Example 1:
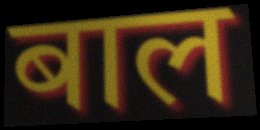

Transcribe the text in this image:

बाल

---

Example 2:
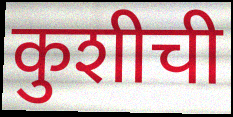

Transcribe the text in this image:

कुशीची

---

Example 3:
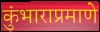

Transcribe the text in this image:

कुंभाराप्रमाणे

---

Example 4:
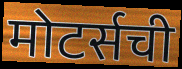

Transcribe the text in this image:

मोटर्सची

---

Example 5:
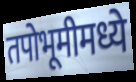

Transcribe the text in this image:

तपोभूमीमध्ये